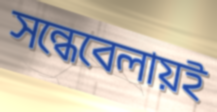
সন্ধেবেলায়ই